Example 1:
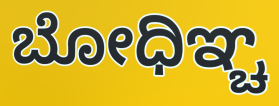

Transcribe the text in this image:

ಬೋಧಿಞ್ಚ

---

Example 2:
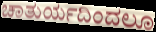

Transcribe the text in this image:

ಚಾತುರ್ಯದಿಂದಲೂ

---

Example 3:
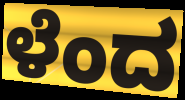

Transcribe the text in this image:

ಳೆಂದ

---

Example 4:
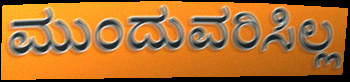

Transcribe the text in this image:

ಮುಂದುವರಿಸಿಲ್ಲ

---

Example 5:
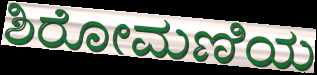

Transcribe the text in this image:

ಶಿರೋಮಣಿಯ